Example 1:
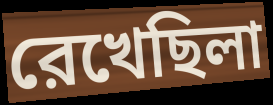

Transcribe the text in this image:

রেখেছিলা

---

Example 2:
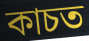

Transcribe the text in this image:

কাচত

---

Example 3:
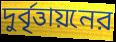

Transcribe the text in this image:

দুর্বৃত্তায়নের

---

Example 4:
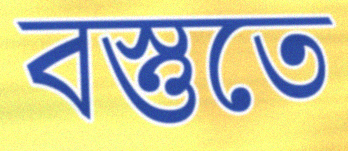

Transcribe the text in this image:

বস্তুতে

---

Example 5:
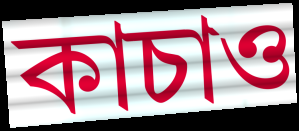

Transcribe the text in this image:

কাচাও